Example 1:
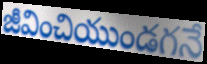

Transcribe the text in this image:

జీవించియుండగనే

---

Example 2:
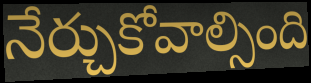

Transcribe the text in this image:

నేర్చుకోవాల్సింది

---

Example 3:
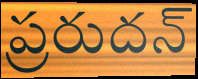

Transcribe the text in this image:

ప్రరుదన్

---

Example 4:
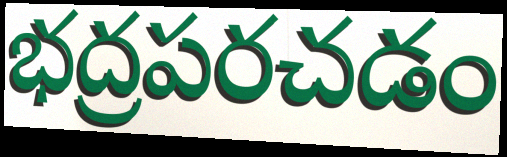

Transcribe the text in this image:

భద్రపరచడం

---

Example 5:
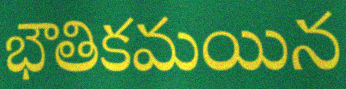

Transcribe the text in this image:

భౌతికమయిన